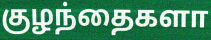
குழந்தைகளா